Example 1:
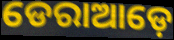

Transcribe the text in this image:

ଡେରାଆଡ଼େ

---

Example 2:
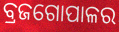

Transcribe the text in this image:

ବ୍ରଜଗୋପାଳର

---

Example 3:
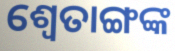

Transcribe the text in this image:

ଶ୍ବେତାଙ୍ଗଙ୍କ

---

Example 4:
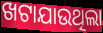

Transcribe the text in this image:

ଖଟାଯାଉଥିଲା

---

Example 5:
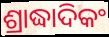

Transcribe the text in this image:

ଶ୍ରାଦ୍ଧାଦିକଂ